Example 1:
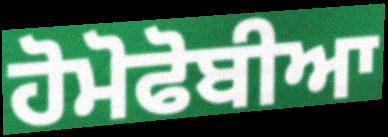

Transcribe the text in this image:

ਹੋਮੋਫੋਬੀਆ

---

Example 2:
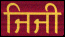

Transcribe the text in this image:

ਜਿਜੀ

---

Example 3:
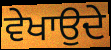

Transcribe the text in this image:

ਵੇਖਾਉਦੇ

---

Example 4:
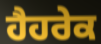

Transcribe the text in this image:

ਹੈਹਰੇਕ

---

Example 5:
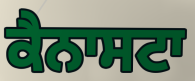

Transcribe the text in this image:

ਕੈਨਾਸਟਾ